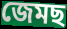
জেমছ